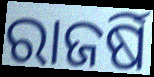
ରାଜର୍ଷି